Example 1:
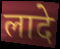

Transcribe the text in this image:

लादे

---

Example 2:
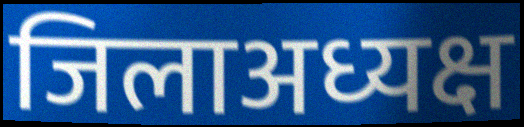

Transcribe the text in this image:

जिलाअध्यक्ष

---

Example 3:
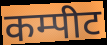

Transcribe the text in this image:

कम्पीट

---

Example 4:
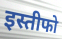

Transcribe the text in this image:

इस्तीफो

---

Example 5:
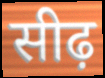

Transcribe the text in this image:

सीढ़